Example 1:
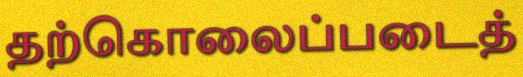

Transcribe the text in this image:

தற்கொலைப்படைத்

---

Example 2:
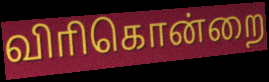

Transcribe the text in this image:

விரிகொன்றை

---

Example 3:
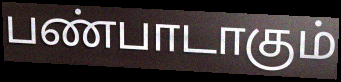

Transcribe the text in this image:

பண்பாடாகும்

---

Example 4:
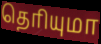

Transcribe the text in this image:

தெரியுமா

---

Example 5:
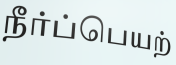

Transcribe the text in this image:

நீர்ப்பெயற்